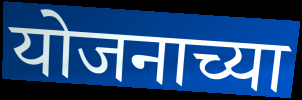
योजनाच्या